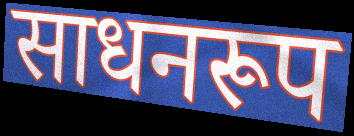
साधनरूप